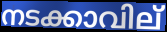
നടക്കാവില്